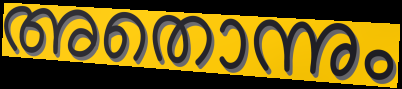
അതൊന്നും